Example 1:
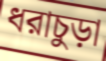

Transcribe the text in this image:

ধরাচুড়া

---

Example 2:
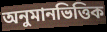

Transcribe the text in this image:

অনুমানভিত্তিক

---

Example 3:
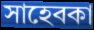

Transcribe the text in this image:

সাহেবকা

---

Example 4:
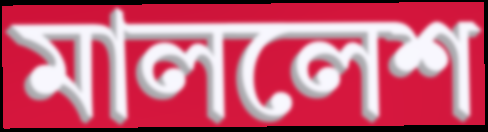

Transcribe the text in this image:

মাললেশ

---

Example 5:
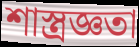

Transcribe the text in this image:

শাস্ত্রজ্ঞতা